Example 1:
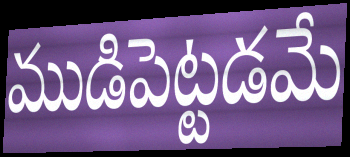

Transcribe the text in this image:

ముడిపెట్టడమే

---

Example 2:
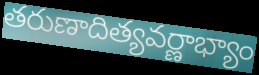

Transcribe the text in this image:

తరుణాదిత్యవర్ణాభ్యాం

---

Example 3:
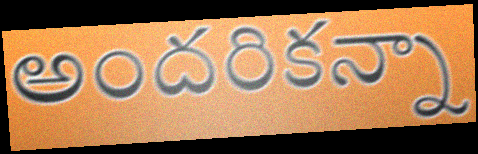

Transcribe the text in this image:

అందరికన్నా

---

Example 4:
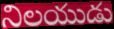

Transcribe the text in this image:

నిలయుడు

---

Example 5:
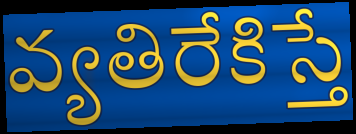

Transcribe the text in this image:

వ్యతిరేకిస్తే